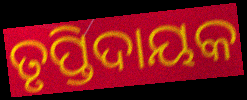
ତୃପ୍ତିଦାୟକ